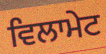
ਵਿਲਾਮੇਟ